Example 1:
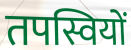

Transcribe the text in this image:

तपस्वियों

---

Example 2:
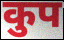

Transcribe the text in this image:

कुप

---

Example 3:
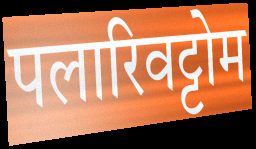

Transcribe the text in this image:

पलारिवट्टोम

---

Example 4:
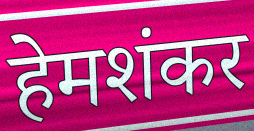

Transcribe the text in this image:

हेमशंकर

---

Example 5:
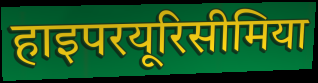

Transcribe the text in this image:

हाइपरयूरिसीमिया